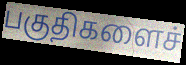
பகுதிகளைச்